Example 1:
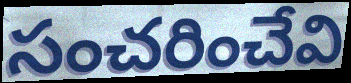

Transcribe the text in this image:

సంచరించేవి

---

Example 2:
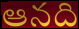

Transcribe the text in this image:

ఆనది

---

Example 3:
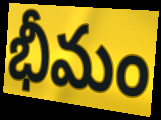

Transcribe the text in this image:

భీమం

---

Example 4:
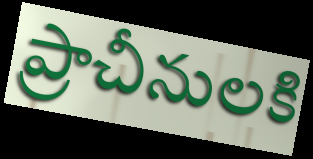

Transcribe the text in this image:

ప్రాచీనులకి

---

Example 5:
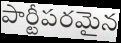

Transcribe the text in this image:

పార్టీపరమైన